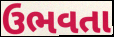
ઉભવતા